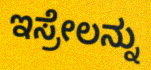
ಇಸ್ರೇಲನ್ನು